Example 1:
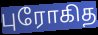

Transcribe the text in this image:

புரோகித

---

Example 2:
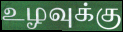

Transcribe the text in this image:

உழவுக்கு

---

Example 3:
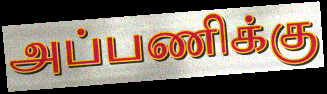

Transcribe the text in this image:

அப்பணிக்கு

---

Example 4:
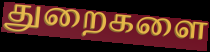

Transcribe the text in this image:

துறைகளை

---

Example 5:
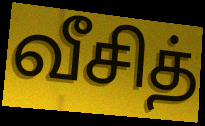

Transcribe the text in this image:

வீசித்